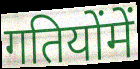
गतियोंमें